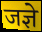
जज्ञे